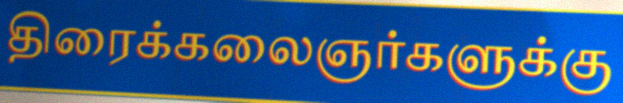
திரைக்கலைஞர்களுக்கு